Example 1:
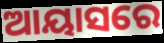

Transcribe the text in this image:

ଆୟାସରେ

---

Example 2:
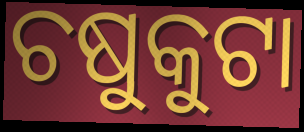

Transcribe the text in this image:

ଚଷୁକୁଟା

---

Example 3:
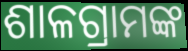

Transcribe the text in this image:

ଶାଳଗ୍ରାମଙ୍କ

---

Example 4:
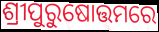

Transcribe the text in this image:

ଶ୍ରୀପୁରୁଷୋତ୍ତମରେ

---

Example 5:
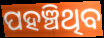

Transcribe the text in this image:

ପହଞ୍ଚିଥିବ